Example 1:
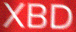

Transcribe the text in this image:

XBD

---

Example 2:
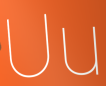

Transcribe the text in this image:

Uu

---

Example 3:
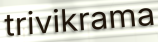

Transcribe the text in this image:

trivikrama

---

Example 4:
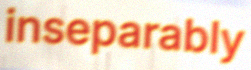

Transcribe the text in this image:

inseparably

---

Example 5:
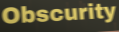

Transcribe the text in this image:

Obscurity